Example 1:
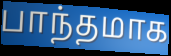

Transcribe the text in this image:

பாந்தமாக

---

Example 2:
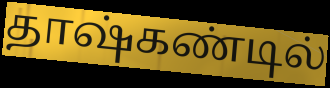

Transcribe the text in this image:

தாஷ்கண்டில்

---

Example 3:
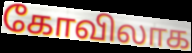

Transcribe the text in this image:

கோவிலாக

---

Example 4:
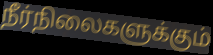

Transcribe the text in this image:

நீர்நிலைகளுக்கும்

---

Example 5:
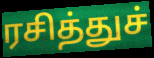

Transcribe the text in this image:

ரசித்துச்